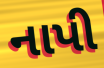
નાપી